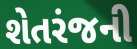
શેતરંજની